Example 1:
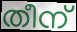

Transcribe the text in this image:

തീന്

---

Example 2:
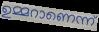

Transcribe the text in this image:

ഉമ്മറാണെന്ന്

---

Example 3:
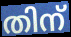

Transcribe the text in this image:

തിന്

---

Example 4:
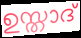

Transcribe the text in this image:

ഉസ്താദ്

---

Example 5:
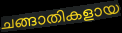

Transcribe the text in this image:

ചങ്ങാതികളായ